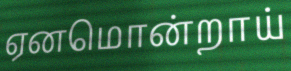
ஏனமொன்றாய்